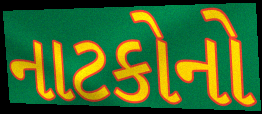
નાટકોનો